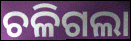
ଚଳିଗଲା